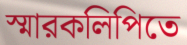
স্মারকলিপিতে